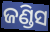
ଜଣ୍ଡିସ